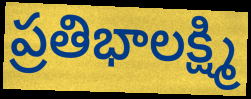
ప్రతిభాలక్ష్మి